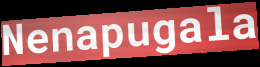
Nenapugala